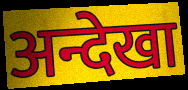
अन्देखा